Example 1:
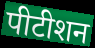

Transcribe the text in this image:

पीटीशन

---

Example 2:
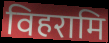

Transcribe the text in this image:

विहरामि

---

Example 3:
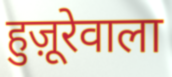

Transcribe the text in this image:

हुज़ूरेवाला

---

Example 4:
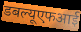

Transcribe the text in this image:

डबल्यूएफआई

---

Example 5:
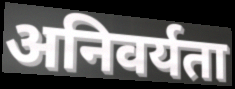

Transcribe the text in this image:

अनिवर्यता